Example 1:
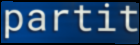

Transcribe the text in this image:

partit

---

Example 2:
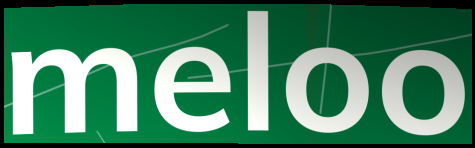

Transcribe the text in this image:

meloo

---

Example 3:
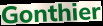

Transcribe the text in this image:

Gonthier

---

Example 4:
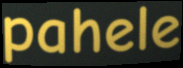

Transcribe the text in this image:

pahele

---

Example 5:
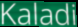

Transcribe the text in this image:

Kaladi